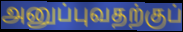
அனுப்புவதற்குப்